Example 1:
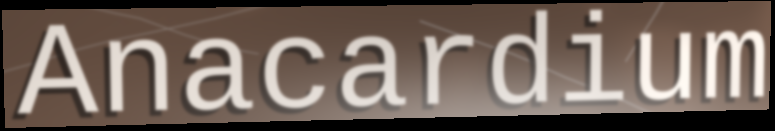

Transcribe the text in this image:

Anacardium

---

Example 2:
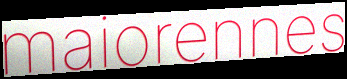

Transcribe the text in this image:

maiorennes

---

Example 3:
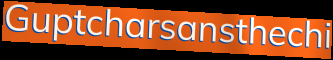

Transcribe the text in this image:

Guptcharsansthechi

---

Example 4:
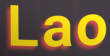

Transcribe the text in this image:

Lao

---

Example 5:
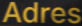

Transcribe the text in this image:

Adres